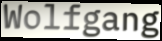
Wolfgang